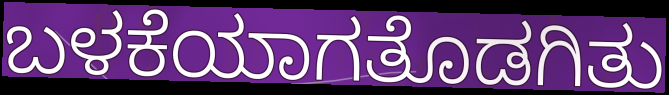
ಬಳಕೆಯಾಗತೊಡಗಿತು